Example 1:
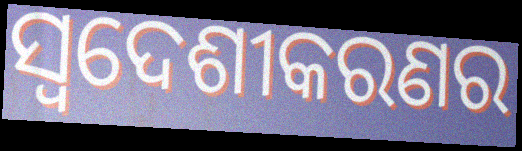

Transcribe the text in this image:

ସ୍ୱଦେଶୀକରଣର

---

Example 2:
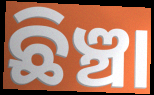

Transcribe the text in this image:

ଛିଞ୍ଚା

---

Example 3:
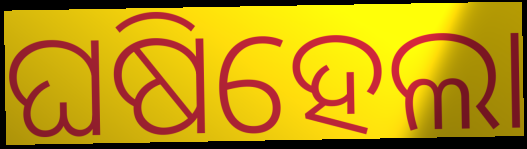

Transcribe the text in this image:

ଘଷିହେଲା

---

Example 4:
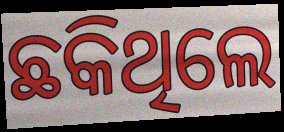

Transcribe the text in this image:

ଛକିଥିଲେ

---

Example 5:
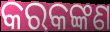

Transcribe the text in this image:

କରକଙ୍କଣ